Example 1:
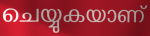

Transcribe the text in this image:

ചെയ്യുകയാണ്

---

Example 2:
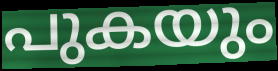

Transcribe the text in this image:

പുകയും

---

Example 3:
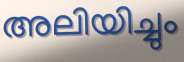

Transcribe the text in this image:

അലിയിച്ചും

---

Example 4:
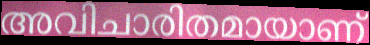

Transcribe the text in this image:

അവിചാരിതമായാണ്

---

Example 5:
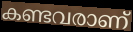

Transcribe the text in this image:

കണ്ടവരാണ്